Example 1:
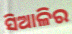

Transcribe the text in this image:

ସିଆଳିର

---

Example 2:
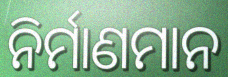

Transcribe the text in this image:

ନିର୍ମାଣମାନ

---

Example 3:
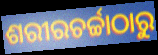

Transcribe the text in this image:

ଶରୀରଚର୍ଚ୍ଚାଠାରୁ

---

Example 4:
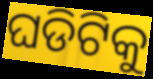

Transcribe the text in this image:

ଘଡିଟିକୁ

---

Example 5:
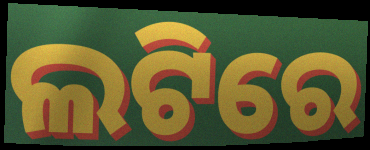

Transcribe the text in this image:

ଲଟିରେ